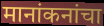
मानांकनांचा